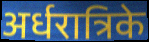
अर्धरात्रिके